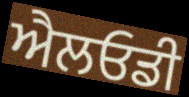
ਐਲਓਡੀ